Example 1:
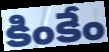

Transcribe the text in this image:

కింకేం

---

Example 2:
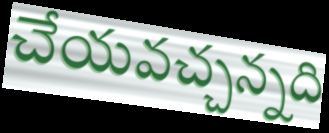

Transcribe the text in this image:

చేయవచ్చన్నది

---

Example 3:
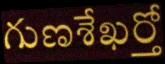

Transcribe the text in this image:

గుణశేఖర్తో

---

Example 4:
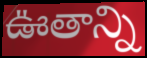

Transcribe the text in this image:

ఊతాన్ని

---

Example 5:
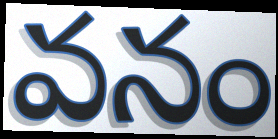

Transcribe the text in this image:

వనం